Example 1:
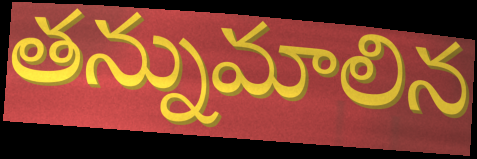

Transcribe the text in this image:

తన్నుమాలిన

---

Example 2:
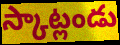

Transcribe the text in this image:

స్కాట్లండు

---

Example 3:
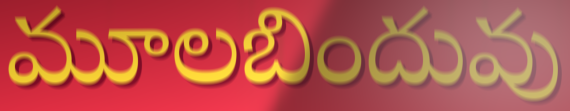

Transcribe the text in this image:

మూలబిందువు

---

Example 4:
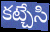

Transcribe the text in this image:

కట్చేసి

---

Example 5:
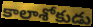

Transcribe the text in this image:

కాలాశోకుడు